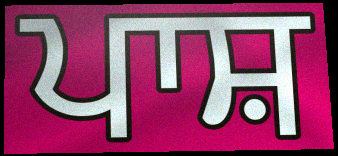
ਪਾਸ਼